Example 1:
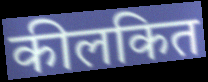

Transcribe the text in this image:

कीलकित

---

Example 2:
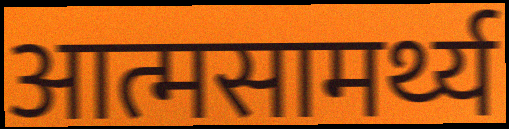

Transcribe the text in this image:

आत्मसामर्थ्य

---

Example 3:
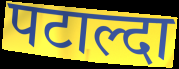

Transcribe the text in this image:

पटाल्दा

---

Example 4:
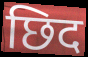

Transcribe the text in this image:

छिद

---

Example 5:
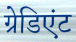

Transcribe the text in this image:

ग्रेडिएंट